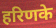
हरिणके